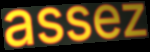
assez